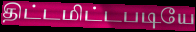
திட்டமிட்டபடியே